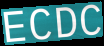
ECDC